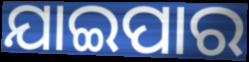
ଯାଇପାର